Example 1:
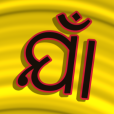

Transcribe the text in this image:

ଯାଁ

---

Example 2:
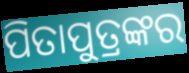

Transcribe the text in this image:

ପିତାପୁତ୍ରଙ୍କର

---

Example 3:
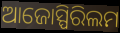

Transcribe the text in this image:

ଆଜୋସ୍ପିରିଲମ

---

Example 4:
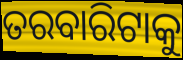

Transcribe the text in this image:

ତରବାରିଟାକୁ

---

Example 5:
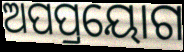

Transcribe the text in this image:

ଅପପ୍ରୟୋଗ